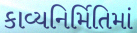
કાવ્યનિર્મિતિમાં